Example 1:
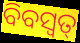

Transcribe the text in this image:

ବିବସ୍ଵତ୍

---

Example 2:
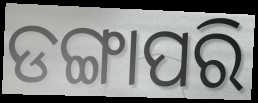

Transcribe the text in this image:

ଡଙ୍ଗାପରି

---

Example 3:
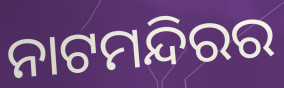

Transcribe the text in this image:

ନାଟମନ୍ଦିରର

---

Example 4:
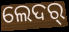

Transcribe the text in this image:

ଲେଦର୍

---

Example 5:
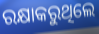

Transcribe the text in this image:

ରକ୍ଷାକରୁଥିଲେ